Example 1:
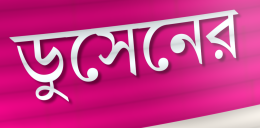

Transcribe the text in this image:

ডুসেনের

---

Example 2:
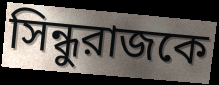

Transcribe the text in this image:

সিন্ধুরাজকে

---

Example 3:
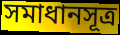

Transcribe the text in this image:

সমাধানসূত্র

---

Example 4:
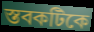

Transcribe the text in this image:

স্তবকটিকে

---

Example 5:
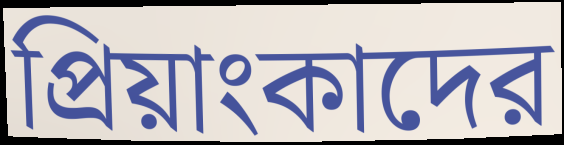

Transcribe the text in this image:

প্রিয়াংকাদের